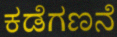
ಕಡೆಗಣನೆ